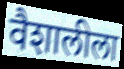
वैशालीला